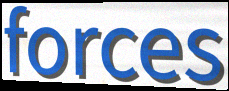
forces